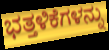
ಭತ್ತಳಿಕೆಗಳನ್ನು